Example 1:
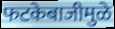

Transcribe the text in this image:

फटकेबाजीमुळे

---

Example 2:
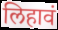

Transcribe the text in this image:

लिहावं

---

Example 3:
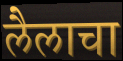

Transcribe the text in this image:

लैलाचा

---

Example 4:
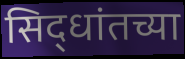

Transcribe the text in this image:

सिद्धांतच्या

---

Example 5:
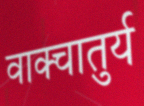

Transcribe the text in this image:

वाक्चातुर्य